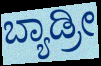
ಬ್ಯಾಡ್ರೀ